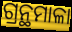
ଗ୍ରନ୍ଥମାଳା